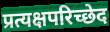
प्रत्यक्षपरिच्छेद